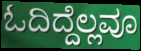
ಓದಿದ್ದೆಲ್ಲವೂ